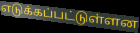
எடுக்கப்பட்டுள்ளன